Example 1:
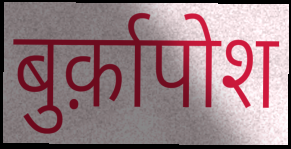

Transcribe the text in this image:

बुर्क़ापोश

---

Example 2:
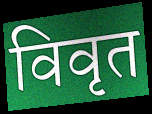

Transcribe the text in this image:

विवृत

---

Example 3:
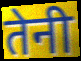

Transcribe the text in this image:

तेनी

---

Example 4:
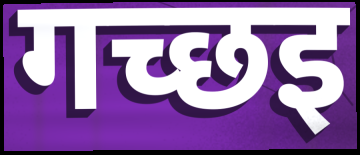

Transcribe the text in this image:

गच्छइ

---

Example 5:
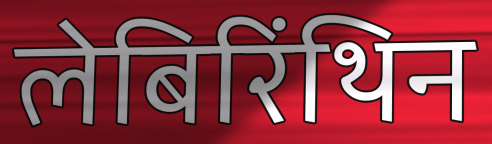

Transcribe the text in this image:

लेबिरिंथिन